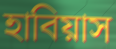
হাবিয়াস